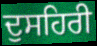
ਦੁਸਹਿਰੀ